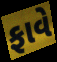
ફાવે